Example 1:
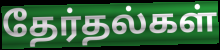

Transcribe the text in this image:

தேர்தல்கள்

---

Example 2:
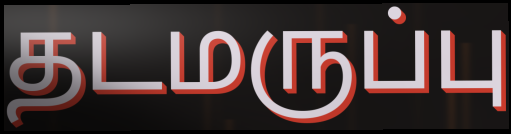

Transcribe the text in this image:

தடமருப்பு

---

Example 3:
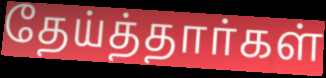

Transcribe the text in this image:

தேய்த்தார்கள்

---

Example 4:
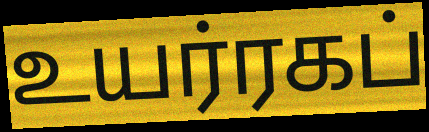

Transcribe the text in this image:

உயர்ரகப்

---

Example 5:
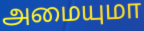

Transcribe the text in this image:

அமையுமா